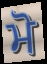
ਮੋ